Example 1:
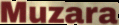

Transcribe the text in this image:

Muzara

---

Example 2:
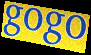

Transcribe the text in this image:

gogo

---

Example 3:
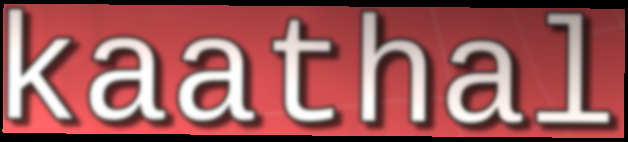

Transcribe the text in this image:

kaathal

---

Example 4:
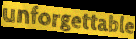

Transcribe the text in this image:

unforgettable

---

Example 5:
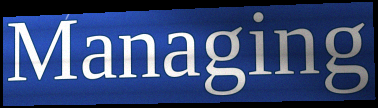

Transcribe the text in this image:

Managing